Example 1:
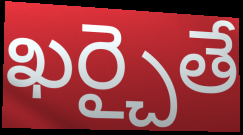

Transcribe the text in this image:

ఖర్చైతే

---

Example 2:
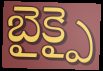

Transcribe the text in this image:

బైక్పై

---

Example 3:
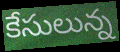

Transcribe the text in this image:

కేసులున్న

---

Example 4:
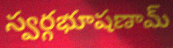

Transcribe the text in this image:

స్వర్గభూషణామ్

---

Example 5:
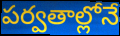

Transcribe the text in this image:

పర్వతాల్లోనే